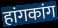
हांगकांग